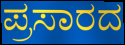
ಪ್ರಸಾರದ